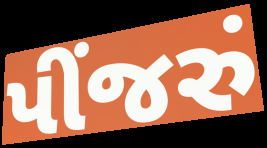
પીંજરું